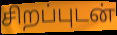
சிறப்புடன்